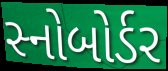
સ્નોબોર્ડર